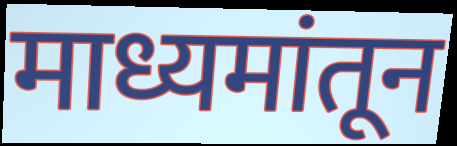
माध्यमांतून